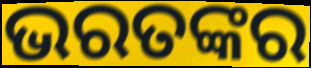
ଭରତଙ୍କର